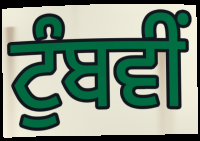
ਟੁੰਬਵੀਂ